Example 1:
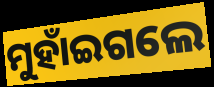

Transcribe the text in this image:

ମୁହାଁଇଗଲେ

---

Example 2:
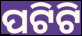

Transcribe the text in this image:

ପଟିଟି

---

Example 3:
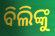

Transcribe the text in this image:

ବିଲିଙ୍କୁ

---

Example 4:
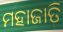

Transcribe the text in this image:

ମହାଜାତି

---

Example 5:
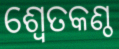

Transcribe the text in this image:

ଶ୍ୱେତକଣ୍ଠ